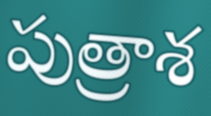
పుత్రాశ